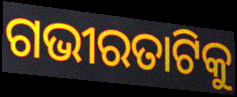
ଗଭୀରତାଟିକୁ